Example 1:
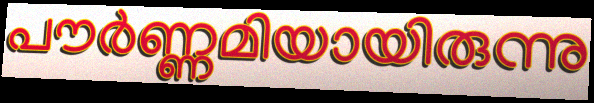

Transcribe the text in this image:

പൗർണ്ണമിയായിരുന്നു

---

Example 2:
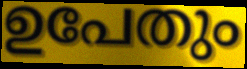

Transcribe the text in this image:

ഉപേതും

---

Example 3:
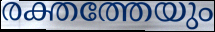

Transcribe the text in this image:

രക്തത്തേയും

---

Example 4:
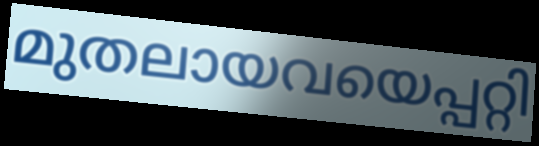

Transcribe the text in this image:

മുതലായവയെപ്പറ്റി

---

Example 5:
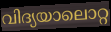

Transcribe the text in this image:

വിദ്യയാലൊറ്റ